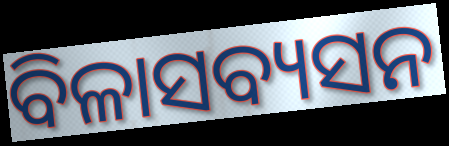
ବିଳାସବ୍ୟସନ